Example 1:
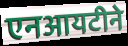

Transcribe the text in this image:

एनआयटीने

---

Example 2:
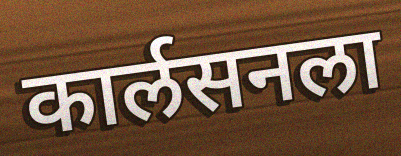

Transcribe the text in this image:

कार्लसनला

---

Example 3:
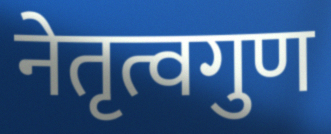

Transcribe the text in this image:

नेतृत्वगुण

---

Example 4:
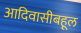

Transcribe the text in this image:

आदिवासीबहूल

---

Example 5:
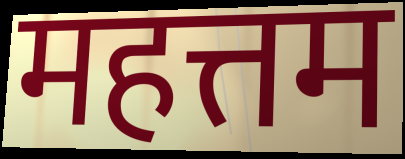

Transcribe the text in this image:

महत्तम